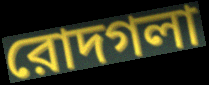
রোদগলা